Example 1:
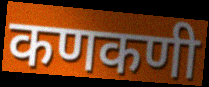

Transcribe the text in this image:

कणकणी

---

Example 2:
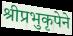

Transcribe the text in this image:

श्रीप्रभुकृपेने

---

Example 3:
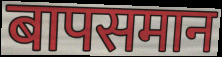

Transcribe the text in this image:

बापसमान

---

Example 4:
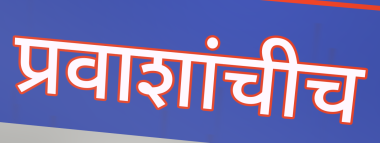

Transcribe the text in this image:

प्रवाशांचीच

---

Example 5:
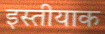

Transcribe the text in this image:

इस्तीयाक